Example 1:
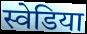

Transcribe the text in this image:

स्वेडिया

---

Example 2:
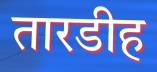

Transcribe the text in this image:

तारडीह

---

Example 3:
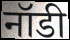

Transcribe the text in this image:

नॉडी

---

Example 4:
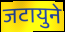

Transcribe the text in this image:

जटायुने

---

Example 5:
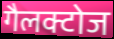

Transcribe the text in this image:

गैलक्टोज